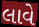
લાવે